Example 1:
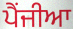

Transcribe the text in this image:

ਪੈਂਜੀਆ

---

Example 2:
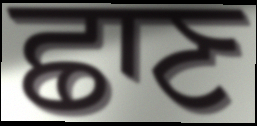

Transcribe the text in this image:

ਛਾਣ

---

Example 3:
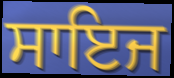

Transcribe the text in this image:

ਸਾਇਜ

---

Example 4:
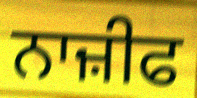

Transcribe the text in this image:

ਨਾਜ਼ੀਫ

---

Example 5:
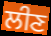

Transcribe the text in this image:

ਲੀਣ